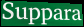
Suppara